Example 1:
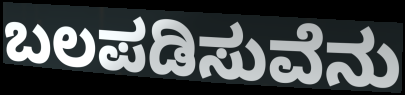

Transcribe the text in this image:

ಬಲಪಡಿಸುವೆನು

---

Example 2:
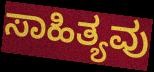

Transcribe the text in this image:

ಸಾಹಿತ್ಯವು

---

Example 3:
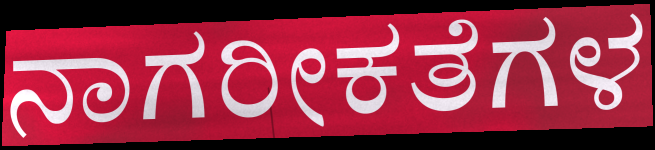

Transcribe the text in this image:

ನಾಗರೀಕತೆಗಳ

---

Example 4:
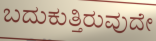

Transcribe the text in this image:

ಬದುಕುತ್ತಿರುವುದೇ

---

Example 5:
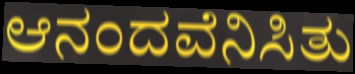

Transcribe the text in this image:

ಆನಂದವೆನಿಸಿತು